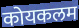
कोयकलम